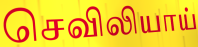
செவிலியாய்